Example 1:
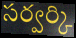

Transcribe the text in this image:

సర్వర్కి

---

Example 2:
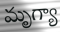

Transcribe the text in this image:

మృగ్యా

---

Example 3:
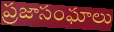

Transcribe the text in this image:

ప్రజాసంఘాలు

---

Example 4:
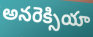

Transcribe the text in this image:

అనరెక్సియా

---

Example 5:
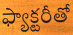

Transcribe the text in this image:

ఫ్యాక్టరీతో